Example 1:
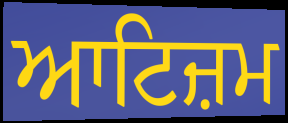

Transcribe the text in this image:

ਆਟਿਜ਼ਮ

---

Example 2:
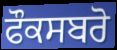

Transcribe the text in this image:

ਫੌਕਸਬਰੋ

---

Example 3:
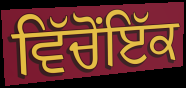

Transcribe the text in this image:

ਵਿੱਚੋਂਇੱਕ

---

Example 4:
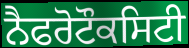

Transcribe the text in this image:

ਨੈਫਰੋਟੌਕਸਿਟੀ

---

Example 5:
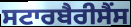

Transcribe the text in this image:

ਸਟਾਰਬੈਰੀਸੈਂਸ